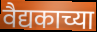
वैद्यकाच्या